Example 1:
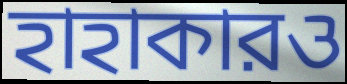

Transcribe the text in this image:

হাহাকারও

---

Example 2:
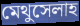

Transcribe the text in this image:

মেথুসেলাহ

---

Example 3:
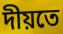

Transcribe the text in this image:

দীয়তে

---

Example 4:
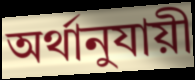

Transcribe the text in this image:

অর্থানুযায়ী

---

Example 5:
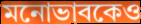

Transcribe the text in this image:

মনোভাবকেও